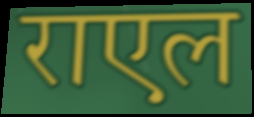
राएल